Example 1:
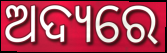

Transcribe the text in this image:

ଅଦ୍ୟରେ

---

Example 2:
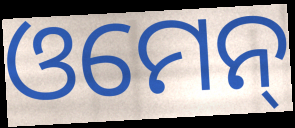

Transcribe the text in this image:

ଓମେନ୍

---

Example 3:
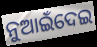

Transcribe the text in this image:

ନୁଆଇଁଦେଇ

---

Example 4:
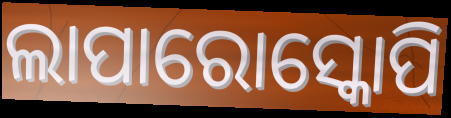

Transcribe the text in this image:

ଲାପାରୋସ୍କୋପି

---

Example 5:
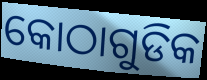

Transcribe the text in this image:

କୋଠାଗୁଡିକ